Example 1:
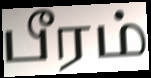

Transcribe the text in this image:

பீரம்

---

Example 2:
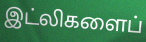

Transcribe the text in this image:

இட்லிகளைப்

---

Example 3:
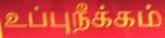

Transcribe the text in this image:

உப்புநீக்கம்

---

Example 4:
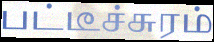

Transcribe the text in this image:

பட்டீச்சுரம்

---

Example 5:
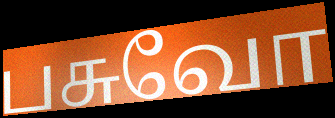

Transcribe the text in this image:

பசுவோ